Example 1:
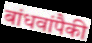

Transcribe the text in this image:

बांधवांपैकी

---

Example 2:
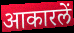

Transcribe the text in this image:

आकारलें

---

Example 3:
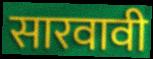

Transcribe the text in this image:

सारवावी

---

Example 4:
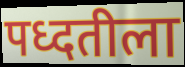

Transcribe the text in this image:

पध्दतीला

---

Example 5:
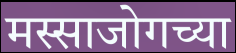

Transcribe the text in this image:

मस्साजोगच्या